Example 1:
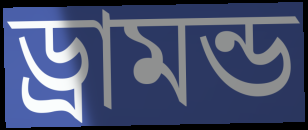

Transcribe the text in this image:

ড্রামন্ড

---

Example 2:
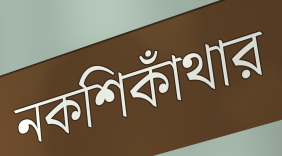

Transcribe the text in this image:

নকশিকাঁথার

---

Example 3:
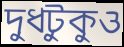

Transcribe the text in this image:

দুধটুকুও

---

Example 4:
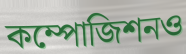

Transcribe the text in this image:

কম্পোজিশনও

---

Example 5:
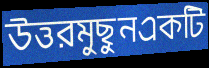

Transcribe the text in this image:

উত্তরমুছুনএকটি